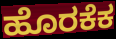
ಹೊರಕೆಕ